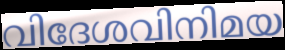
വിദേശവിനിമയ